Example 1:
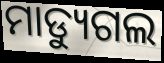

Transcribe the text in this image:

ମାଡ୍ୟୁଗଲ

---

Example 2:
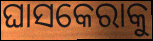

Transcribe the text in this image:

ଘାସକେରାକୁ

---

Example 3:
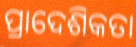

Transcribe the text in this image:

ପ୍ରାଦେଶିକତା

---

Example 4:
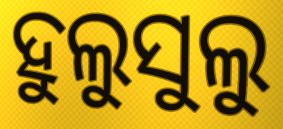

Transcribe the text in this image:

ହୁଲୁସୁଲୁ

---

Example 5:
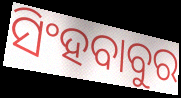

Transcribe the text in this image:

ସିଂହବାବୁର